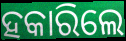
ହକାରିଲେ